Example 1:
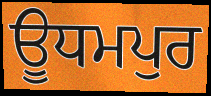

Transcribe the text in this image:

ਊਧਮਪੁਰ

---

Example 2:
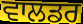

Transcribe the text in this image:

ਵਾਲਡਰ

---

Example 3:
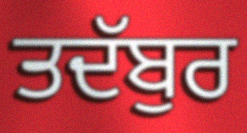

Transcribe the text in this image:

ਤਦੱਬੁਰ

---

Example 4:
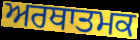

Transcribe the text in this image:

ਅਰਥਾਤਮਕ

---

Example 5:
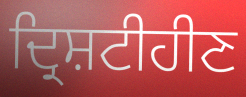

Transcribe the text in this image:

ਦ੍ਰਿਸ਼ਟੀਹੀਣ